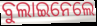
ବୁଲାଇନେଲେ